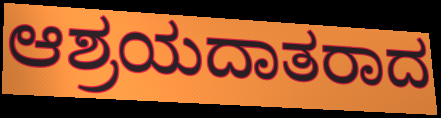
ಆಶ್ರಯದಾತರಾದ